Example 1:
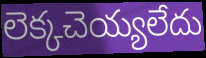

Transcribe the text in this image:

లెక్కచెయ్యలేదు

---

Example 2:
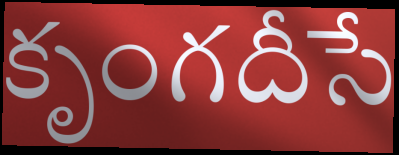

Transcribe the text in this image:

కృంగదీసే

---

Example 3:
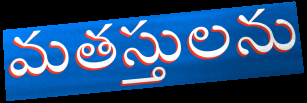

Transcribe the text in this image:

మతస్తులను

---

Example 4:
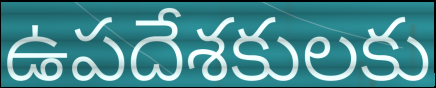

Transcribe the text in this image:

ఉపదేశకులకు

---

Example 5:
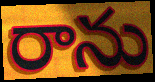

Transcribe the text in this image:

రాను